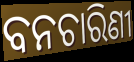
ବନଚାରିଣୀ